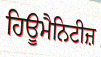
ਹਿਊਮੈਨਿਟੀਜ਼